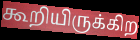
கூறியிருக்கிற